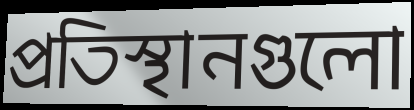
প্রতিস্থানগুলো